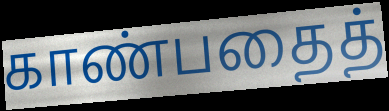
காண்பதைத்